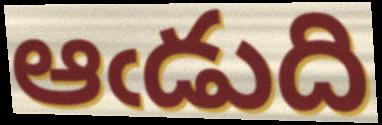
ఆఁడుది